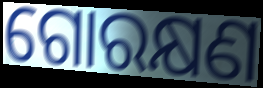
ଗୋରକ୍ଷଣ